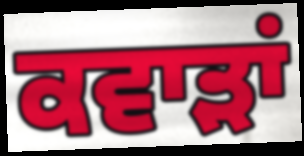
ਕਵਾੜਾਂ